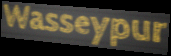
Wasseypur